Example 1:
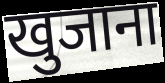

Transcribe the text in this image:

खुजाना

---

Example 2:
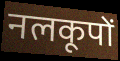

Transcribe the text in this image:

नलकूपों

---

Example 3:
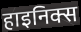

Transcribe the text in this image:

हाइनिक्स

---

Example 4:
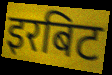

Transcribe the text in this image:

इरबिट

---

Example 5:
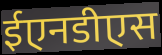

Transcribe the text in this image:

ईएनडीएस